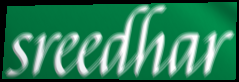
sreedhar